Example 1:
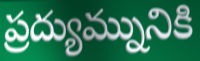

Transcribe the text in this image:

ప్రద్యుమ్నునికి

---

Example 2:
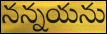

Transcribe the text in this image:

నన్నయను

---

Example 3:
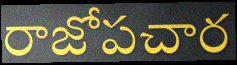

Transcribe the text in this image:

రాజోపచార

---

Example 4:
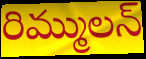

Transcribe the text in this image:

రిమ్ములన్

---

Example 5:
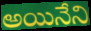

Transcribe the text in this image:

అయినేని